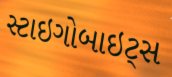
સ્ટાઇગોબાઇટ્સ